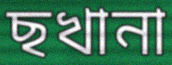
ছখানা